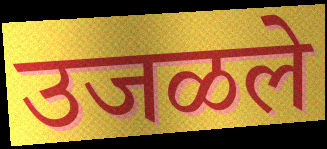
उजळले